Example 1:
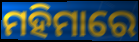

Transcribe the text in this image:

ମହିମାରେ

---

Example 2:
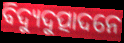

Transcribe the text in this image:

ବିଦ୍ଯୁଦୁତ୍ପାଦନେ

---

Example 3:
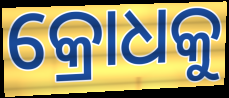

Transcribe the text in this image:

କ୍ରୋଧକୁ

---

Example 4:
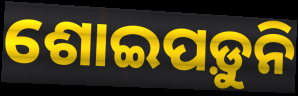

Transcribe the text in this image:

ଶୋଇପଡ଼ୁନି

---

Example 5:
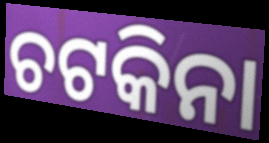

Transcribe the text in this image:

ଚଟକିନା